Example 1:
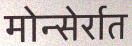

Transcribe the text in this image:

मोन्सेर्रात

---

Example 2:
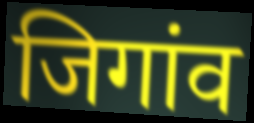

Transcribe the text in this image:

जिगांव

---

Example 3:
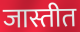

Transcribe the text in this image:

जास्तीत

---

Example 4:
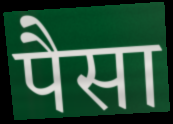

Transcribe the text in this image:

पैसा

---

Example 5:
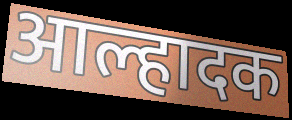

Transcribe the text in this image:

आल्हादक